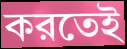
করতেই